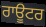
ਰਾਊਟਰ